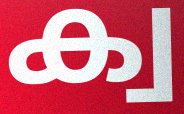
ക്വ